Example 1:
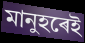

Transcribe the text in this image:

মানুহৰেই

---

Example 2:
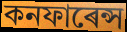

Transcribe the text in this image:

কনফাৰেন্স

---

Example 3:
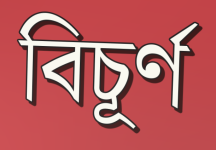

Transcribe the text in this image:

বিচূৰ্ণ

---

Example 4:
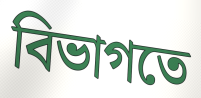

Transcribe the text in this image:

বিভাগতে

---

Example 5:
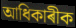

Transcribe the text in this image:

আধিকাৰীক